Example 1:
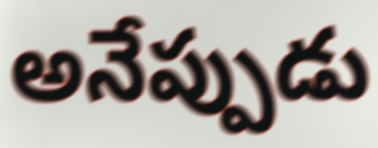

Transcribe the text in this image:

అనేప్పుడు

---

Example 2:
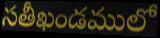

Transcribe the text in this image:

సతీఖండములో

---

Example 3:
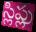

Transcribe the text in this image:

స్లిప్లు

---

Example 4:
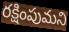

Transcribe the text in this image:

రక్షింపుమని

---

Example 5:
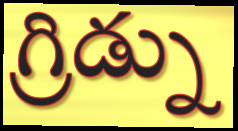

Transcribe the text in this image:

గ్రిడ్ను